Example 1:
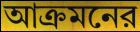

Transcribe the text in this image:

আক্রমনের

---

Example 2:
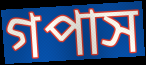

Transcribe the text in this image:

গপাস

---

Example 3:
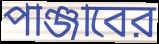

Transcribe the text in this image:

পাঞ্জাবের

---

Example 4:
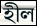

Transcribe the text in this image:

হীল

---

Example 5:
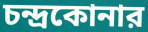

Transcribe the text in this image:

চন্দ্রকোনার